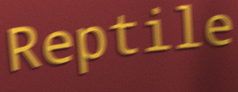
Reptile